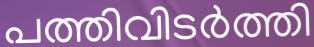
പത്തിവിടർത്തി